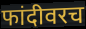
फांदीवरच